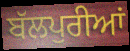
ਬੱਲਪੁਰੀਆਂ